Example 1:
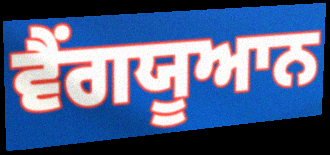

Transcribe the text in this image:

ਵੈਂਗਯੂਆਨ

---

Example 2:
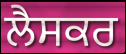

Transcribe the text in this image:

ਲੈਸਕਰ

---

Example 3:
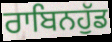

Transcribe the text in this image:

ਰਾਬਿਨਹੁੱਡ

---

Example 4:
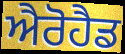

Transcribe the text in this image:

ਐਰੋਹੈਡ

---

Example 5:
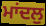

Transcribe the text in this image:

ਮਾਂਦਲੁ